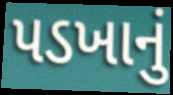
પડખાનું